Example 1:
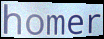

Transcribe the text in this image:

homer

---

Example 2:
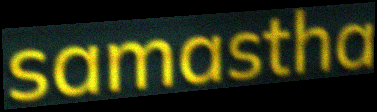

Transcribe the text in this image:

samastha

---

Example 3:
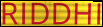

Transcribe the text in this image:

RIDDHI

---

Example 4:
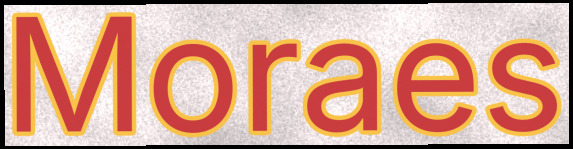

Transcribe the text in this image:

Moraes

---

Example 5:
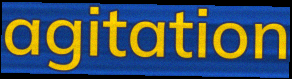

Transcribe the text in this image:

agitation